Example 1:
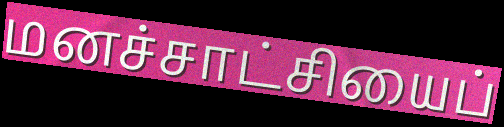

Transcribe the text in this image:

மனச்சாட்சியைப்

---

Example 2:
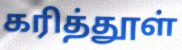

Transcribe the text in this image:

கரித்தூள்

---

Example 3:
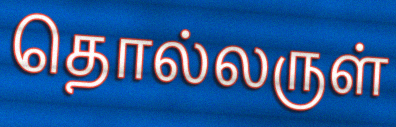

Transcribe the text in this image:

தொல்லருள்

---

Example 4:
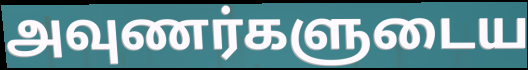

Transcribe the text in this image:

அவுணர்களுடைய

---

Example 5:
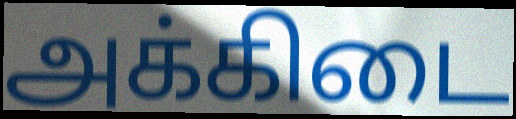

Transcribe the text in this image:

அக்கிடை